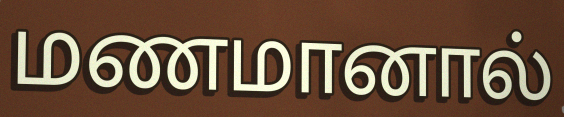
மணமானால்